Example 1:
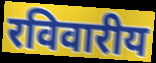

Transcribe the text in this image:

रविवारीय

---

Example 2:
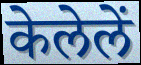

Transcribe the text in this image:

केलेलें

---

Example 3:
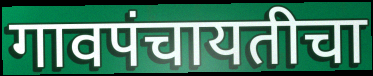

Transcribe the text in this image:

गावपंचायतीचा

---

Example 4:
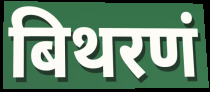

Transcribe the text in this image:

बिथरणं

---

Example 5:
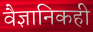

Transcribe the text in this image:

वैज्ञानिकही